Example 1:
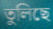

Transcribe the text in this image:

তুলিছে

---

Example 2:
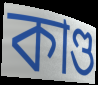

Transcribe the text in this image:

কাণ্ড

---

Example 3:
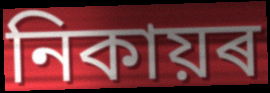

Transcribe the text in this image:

নিকায়ৰ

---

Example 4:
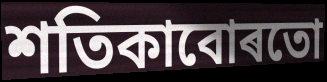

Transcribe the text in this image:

শতিকাবোৰতো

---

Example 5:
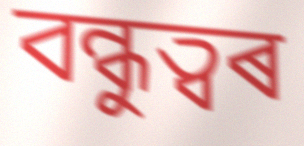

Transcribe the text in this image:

বন্ধুত্বৰ